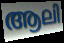
ആലി